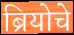
ब्रियोचे